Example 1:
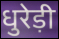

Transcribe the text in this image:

धुरेड़ी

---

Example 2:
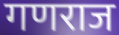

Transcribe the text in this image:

गणराज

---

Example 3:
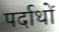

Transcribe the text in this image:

पर्दाथों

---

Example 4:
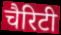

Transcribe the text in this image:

चैरिटी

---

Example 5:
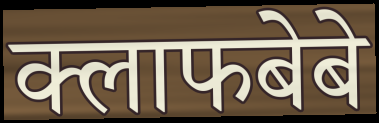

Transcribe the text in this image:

क्लाफबेबे